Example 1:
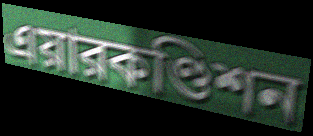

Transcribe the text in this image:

এয়ারকণ্ডিশন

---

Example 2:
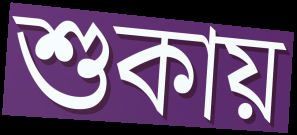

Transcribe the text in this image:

শুকায়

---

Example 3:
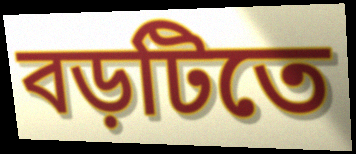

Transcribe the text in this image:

বড়টিতে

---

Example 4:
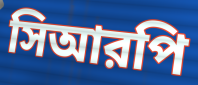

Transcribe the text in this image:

সিআরপি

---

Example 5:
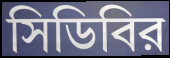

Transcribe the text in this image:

সিডিবির